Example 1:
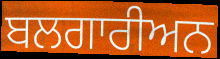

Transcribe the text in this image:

ਬਲਗਾਰੀਅਨ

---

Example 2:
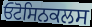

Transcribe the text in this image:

ਓਟੋਸਿਨਕਲਸ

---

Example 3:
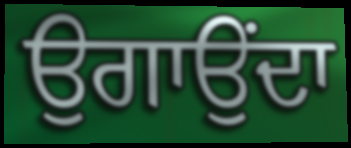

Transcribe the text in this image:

ਉਗਾਉਂਦਾ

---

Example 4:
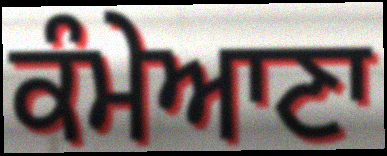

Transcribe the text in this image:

ਕੰਮੇਆਣਾ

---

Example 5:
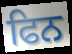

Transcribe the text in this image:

ਫਿਨ